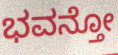
ಭವನ್ತೋ